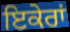
ਇਕੇਰਾਂ